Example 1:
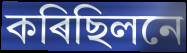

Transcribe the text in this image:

কৰিছিলনে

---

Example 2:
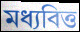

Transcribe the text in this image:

মধ্যবিত্ত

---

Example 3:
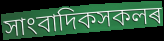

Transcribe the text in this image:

সাংবাদিকসকলৰ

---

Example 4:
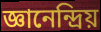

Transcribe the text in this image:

জ্ঞানেন্দ্ৰিয়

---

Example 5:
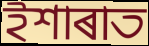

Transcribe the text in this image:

ইশাৰাত